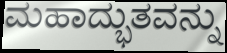
ಮಹಾದ್ಭುತವನ್ನು